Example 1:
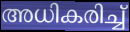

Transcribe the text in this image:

അധികരിച്ച്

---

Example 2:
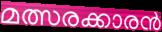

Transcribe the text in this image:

മത്സരക്കാരൻ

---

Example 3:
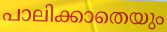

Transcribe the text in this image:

പാലിക്കാതെയും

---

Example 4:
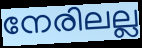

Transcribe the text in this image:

നേരിലല്ല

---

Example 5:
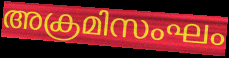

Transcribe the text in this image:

അക്രമിസംഘം